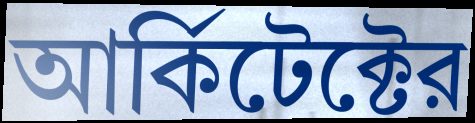
আর্কিটেক্টের